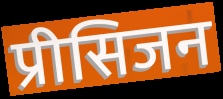
प्रीसिजन